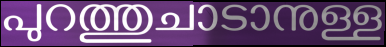
പുറത്തുചാടാനുള്ള